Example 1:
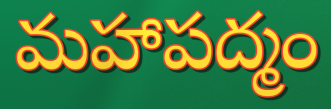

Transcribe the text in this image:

మహాపద్మం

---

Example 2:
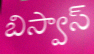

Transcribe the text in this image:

బిస్వాస్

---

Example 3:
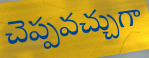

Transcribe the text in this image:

చెప్పవచ్చుగా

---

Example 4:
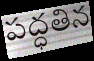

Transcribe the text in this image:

పద్ధతిన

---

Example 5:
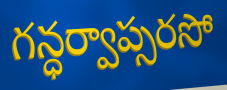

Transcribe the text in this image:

గన్ధర్వాప్సరసో